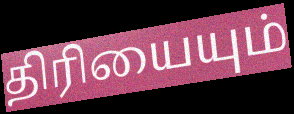
திரியையும்